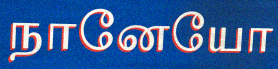
நானேயோ